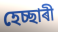
হেচ্ছাৰী